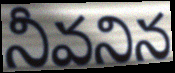
నీవనిన